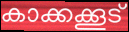
കാക്കക്കൂട്